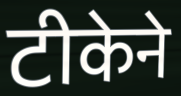
टीकेने